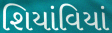
શિયાંવિયાં